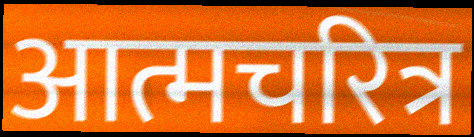
आत्मचरित्र